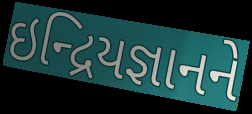
ઇન્દ્રિયજ્ઞાનને